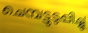
ചെമ്പട്ടുടുപ്പിച്ചു